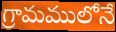
గ్రామములోనే